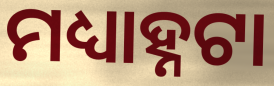
ମଧ୍ୟାହ୍ନଟା